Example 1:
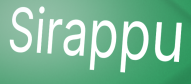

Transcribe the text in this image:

Sirappu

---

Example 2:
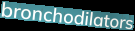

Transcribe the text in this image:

bronchodilators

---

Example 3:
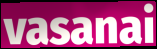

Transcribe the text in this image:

vasanai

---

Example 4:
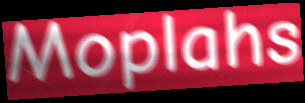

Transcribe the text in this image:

Moplahs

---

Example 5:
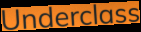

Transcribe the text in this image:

Underclass